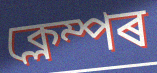
ক্লেম্পৰ